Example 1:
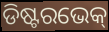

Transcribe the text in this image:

ଡିଷ୍ଟରଭେକ୍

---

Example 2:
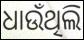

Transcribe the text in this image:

ଧାଉଁଥିଲି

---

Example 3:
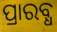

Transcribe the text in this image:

ପ୍ରାରବ୍ଧ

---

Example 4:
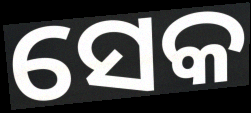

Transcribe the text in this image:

ସେକ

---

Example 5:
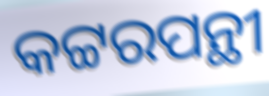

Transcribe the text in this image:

କଟ୍ଟରପନ୍ଥୀ